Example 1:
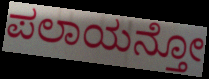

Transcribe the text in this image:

ಪಲಾಯನ್ತೋ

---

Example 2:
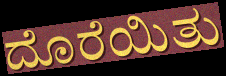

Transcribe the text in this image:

ದೊರೆಯಿತು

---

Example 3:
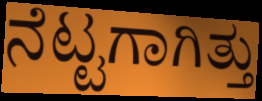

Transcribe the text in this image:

ನೆಟ್ಟಗಾಗಿತ್ತು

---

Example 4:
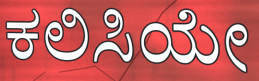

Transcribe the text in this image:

ಕಲಿಸಿಯೇ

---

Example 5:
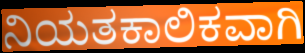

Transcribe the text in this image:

ನಿಯತಕಾಲಿಕವಾಗಿ